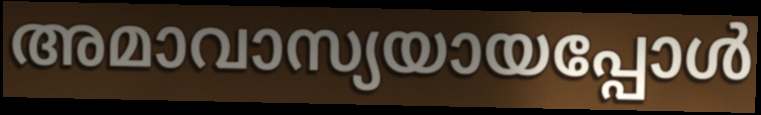
അമാവാസ്യയായപ്പോൾ